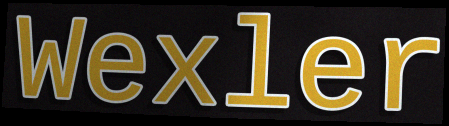
Wexler